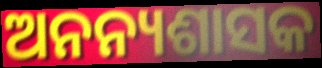
ଅନନ୍ୟଶାସକ